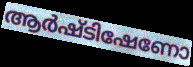
ആർഷ്ടിഷേണോ